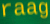
raag